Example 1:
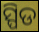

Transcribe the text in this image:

ସ୍ପିଡ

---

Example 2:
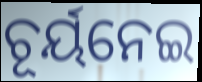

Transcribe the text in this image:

ଚୂର୍ୟନେଇ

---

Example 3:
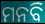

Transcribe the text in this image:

ମନବି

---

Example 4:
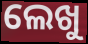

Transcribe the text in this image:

ଲେଖୁ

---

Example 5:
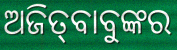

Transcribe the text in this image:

ଅଜିତ୍‍ବାବୁଙ୍କର